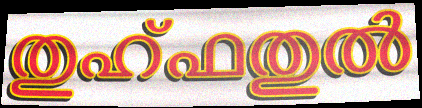
തുഹ്ഫതുൽ